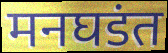
मनघडंत